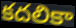
కదలికా